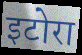
इटोरा